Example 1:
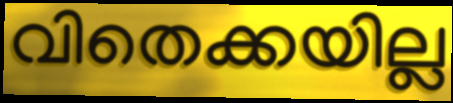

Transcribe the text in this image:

വിതെക്കയില്ല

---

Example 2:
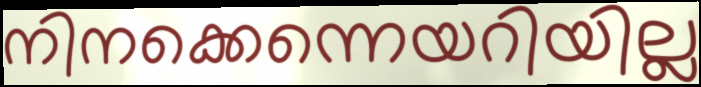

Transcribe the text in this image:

നിനക്കെന്നെയറിയില്ല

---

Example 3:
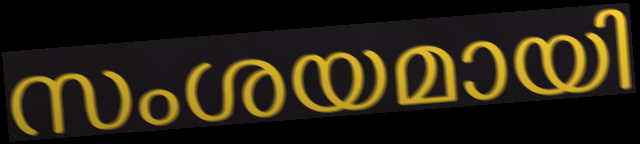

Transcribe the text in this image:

സംശയമായി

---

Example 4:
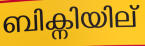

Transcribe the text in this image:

ബിക്നിയില്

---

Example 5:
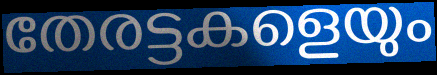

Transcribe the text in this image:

തേരട്ടകളെയും